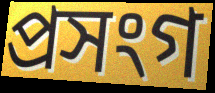
প্রসংগ